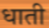
धाती